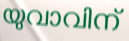
യുവാവിന്